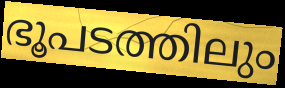
ഭൂപടത്തിലും